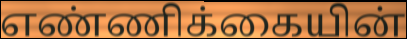
எண்ணிக்கையின்